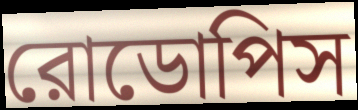
রোডোপিস